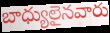
బాధ్యులైనవారు